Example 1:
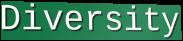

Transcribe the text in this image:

Diversity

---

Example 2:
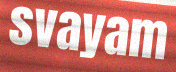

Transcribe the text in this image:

svayam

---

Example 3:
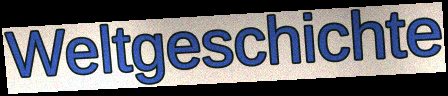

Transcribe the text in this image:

Weltgeschichte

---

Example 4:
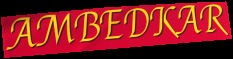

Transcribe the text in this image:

AMBEDKAR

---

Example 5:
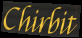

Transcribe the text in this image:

Chirbit